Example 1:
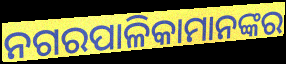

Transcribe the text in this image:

ନଗରପାଳିକାମାନଙ୍କର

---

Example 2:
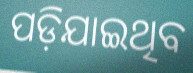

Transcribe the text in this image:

ପଡ଼ିଯାଇଥିବ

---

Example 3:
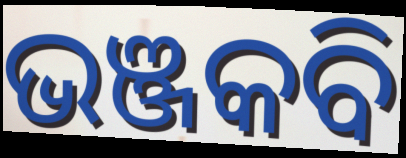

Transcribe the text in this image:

ଭଞ୍ଜକବି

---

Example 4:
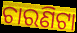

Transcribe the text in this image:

ଚାରଣିଟା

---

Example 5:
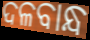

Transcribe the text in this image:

ଦଳବାନ୍ଧ